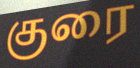
குரை